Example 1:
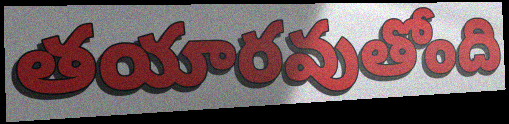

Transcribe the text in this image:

తయారవుతోంది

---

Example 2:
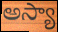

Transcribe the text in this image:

అస్యా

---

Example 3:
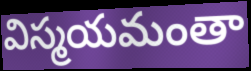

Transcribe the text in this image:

విస్మయమంతా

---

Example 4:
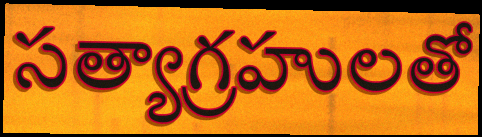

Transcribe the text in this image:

సత్యాగ్రహులతో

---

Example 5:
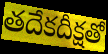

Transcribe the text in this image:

తదేకదీక్షతో